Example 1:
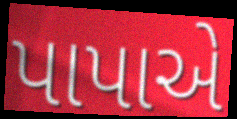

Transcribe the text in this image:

પાપાએ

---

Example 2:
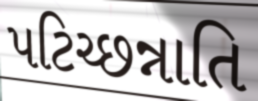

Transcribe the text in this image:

પટિચ્છન્નાતિ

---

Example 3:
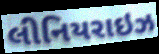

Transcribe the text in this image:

લીનિયરાઇઝ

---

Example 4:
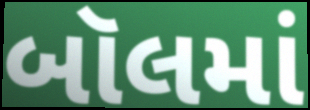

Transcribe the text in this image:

બૉલમાં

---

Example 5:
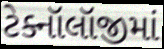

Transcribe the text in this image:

ટેક્નૉલૉજીમાં